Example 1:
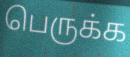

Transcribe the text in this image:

பெருக்க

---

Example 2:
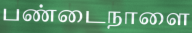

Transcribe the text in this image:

பண்டைநாளை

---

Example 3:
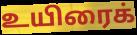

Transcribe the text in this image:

உயிரைக்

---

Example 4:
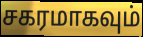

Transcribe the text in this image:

சகரமாகவும்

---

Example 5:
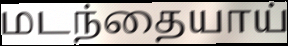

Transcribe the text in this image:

மடந்தையாய்